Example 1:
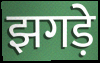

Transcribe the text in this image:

झगड़े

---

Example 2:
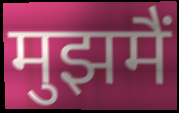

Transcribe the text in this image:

मुझमैं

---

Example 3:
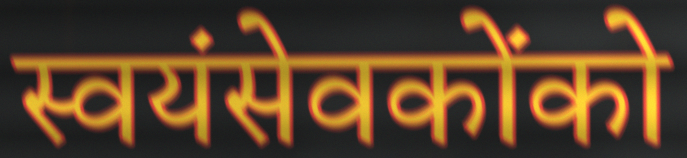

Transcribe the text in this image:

स्वयंसेवकोंको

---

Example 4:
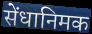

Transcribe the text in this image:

सेंधानिमक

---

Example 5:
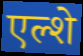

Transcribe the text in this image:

एल्शे